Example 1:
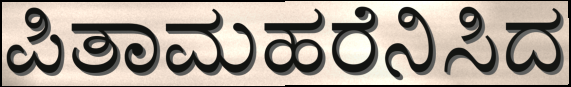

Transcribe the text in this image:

ಪಿತಾಮಹರೆನಿಸಿದ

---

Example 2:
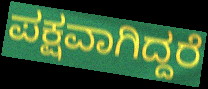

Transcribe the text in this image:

ಪಕ್ಷವಾಗಿದ್ದರೆ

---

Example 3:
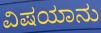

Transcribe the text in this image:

ವಿಷಯಾನು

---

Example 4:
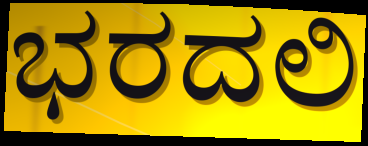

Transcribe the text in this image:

ಭರದಲಿ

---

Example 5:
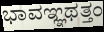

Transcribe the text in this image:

ಭಾವಞ್ಞಥತ್ತಂ